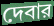
দেবার